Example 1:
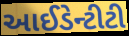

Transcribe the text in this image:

આઈડેન્ટીટી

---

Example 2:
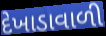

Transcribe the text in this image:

દેખાડાવાળી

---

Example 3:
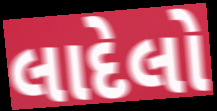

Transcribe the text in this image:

લાદેલો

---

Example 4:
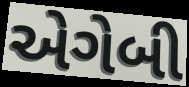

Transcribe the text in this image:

એગેબી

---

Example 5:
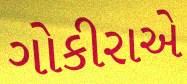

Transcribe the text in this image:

ગોકીરાએ